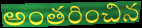
అంతరించిన